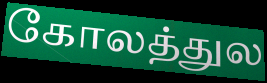
கோலத்துல